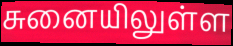
சுனையிலுள்ள